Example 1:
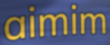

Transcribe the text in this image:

aimim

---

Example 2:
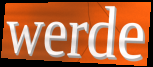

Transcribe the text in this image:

werde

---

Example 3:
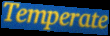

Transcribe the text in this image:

Temperate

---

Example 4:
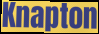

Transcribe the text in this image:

Knapton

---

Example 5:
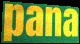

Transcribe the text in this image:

pana